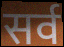
सर्व